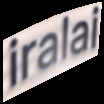
iralai